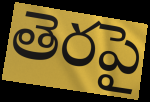
తెరపై